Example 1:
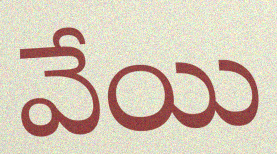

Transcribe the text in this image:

వేయి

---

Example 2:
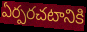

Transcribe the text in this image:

ఏర్పరచటానికి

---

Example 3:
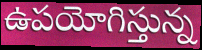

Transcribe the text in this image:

ఉపయోగిస్తున్న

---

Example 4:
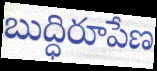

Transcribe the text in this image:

బుద్ధిరూపేణ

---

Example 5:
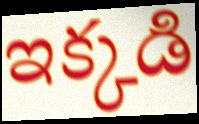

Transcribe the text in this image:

ఇక్కడి